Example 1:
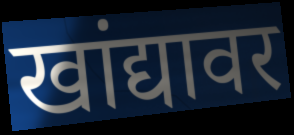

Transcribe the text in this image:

खांद्यावर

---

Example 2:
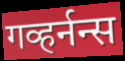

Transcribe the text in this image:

गव्हर्नन्स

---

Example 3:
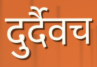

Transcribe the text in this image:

दुर्दैवच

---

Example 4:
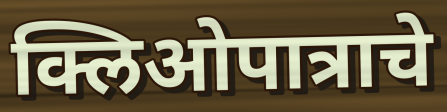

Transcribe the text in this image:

क्लिओपात्राचे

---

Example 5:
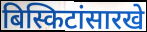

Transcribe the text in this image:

बिस्किटांसारखे